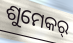
ଶୁମେକର୍